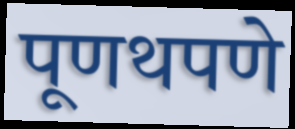
पूणथपणे